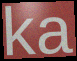
ka